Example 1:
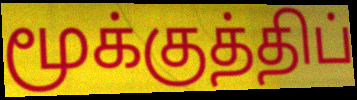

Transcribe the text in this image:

மூக்குத்திப்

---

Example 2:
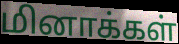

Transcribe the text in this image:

மினாக்கள்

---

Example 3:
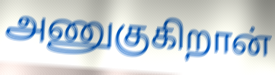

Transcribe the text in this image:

அணுகுகிறான்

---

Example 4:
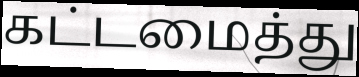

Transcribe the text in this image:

கட்டமைத்து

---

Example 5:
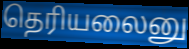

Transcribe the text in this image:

தெரியலைனு